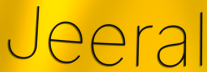
Jeeral